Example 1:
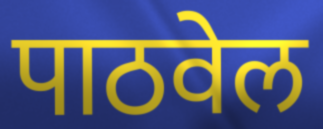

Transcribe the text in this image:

पाठवेल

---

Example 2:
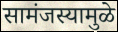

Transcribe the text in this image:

सामंजस्यामुळे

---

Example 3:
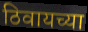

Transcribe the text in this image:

ठिवायच्या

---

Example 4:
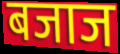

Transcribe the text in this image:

बजाज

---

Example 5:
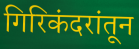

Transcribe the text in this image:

गिरिकंदरांतून